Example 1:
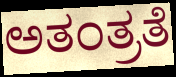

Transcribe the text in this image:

ಅತಂತ್ರತೆ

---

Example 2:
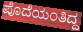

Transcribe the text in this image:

ಪೊದೆಯಂತಿದ್ದ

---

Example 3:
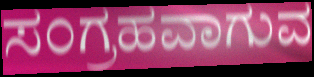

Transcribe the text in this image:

ಸಂಗ್ರಹವಾಗುವ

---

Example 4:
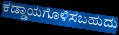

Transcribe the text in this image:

ಕಡ್ಡಾಯಗೊಳಿಸಬಹುದು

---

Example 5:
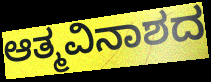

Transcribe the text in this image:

ಆತ್ಮವಿನಾಶದ